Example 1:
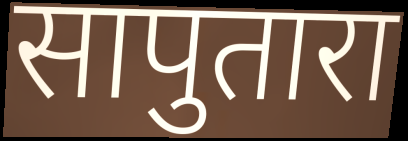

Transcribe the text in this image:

सापुतारा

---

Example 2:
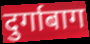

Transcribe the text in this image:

दुर्गाबाग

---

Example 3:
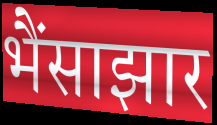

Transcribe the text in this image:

भैंसाझार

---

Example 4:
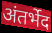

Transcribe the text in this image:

अंतर्भेद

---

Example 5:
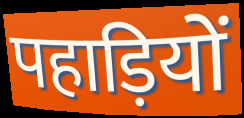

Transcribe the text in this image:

पहाड़ियों